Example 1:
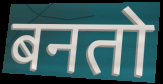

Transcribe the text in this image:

बनतो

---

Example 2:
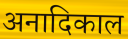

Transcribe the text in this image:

अनादिकाल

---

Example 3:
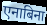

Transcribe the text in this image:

एनाबिना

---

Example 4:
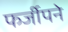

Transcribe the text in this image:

फर्जीपने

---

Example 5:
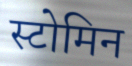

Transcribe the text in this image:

स्टोमिन